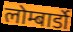
लोम्बार्डो